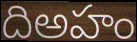
దిఅహం